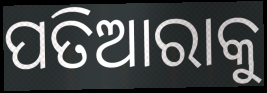
ପତିଆରାକୁ